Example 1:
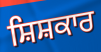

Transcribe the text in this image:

ਸ਼ਿਸ਼ਕਾਰ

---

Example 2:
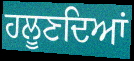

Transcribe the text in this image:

ਹਲੂਣਦਿਆਂ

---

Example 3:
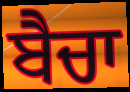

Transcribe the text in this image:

ਬੈਚਾ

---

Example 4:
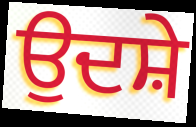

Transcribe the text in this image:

ਉਦਸ਼ੇ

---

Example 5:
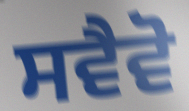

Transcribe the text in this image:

ਸਵੈਵੋ